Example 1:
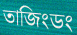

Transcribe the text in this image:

তাজিংডং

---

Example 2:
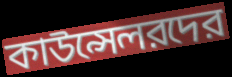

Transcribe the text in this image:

কাউন্সেলরদের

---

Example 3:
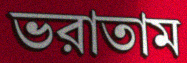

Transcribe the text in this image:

ভরাতাম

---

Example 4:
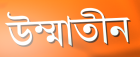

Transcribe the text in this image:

উম্মাতীন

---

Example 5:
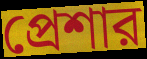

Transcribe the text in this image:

প্রেশার